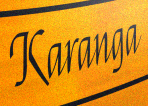
Karanga